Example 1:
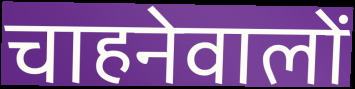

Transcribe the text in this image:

चाहनेवालों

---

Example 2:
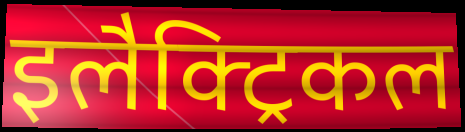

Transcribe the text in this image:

इलैक्ट्रिकल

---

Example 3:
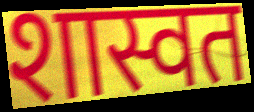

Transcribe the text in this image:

शास्वत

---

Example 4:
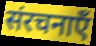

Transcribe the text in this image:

संरचनाएँ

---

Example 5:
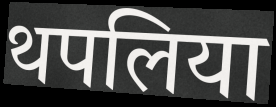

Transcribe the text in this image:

थपलिया